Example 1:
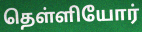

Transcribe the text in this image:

தெள்ளியோர்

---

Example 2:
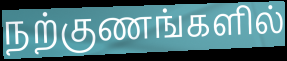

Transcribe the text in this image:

நற்குணங்களில்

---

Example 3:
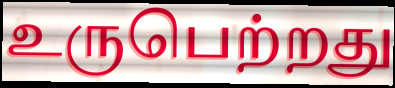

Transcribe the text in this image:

உருபெற்றது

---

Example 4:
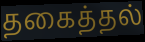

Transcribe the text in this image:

தகைத்தல்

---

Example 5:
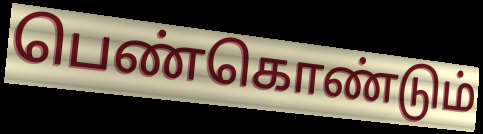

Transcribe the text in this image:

பெண்கொண்டும்